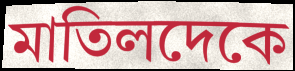
মাতিলদেকে